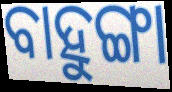
ବାହୁଙ୍ଗା